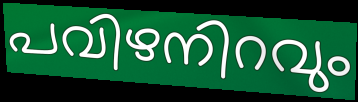
പവിഴനിറവും